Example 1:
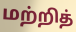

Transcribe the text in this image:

மற்றித்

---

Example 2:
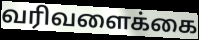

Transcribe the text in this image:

வரிவளைக்கை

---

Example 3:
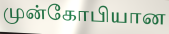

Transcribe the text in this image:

முன்கோபியான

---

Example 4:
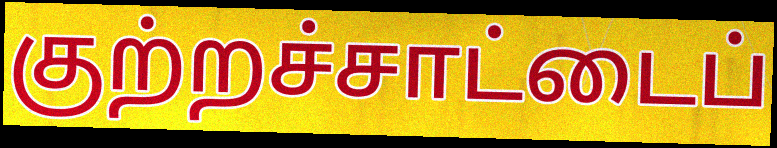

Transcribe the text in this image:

குற்றச்சாட்டைப்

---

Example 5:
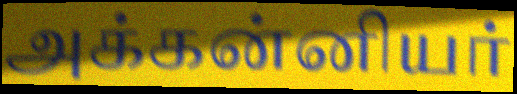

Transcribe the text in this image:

அக்கன்னியர்